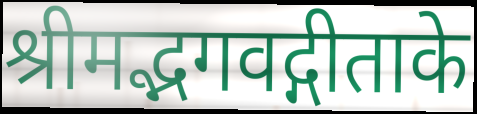
श्रीमद्भगवद्गीताके